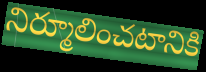
నిర్మూలించటానికి